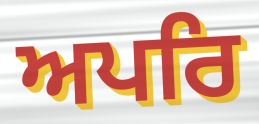
ਅਪਰਿ